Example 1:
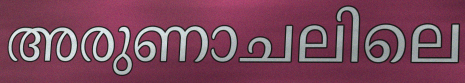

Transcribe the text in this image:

അരുണാചലിലെ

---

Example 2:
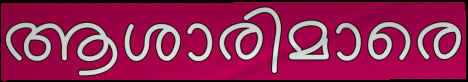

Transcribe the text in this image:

ആശാരിമാരെ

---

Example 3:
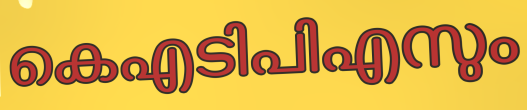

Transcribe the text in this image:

കെഎടിപിഎസും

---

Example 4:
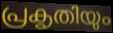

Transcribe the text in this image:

പ്രകൃതിയും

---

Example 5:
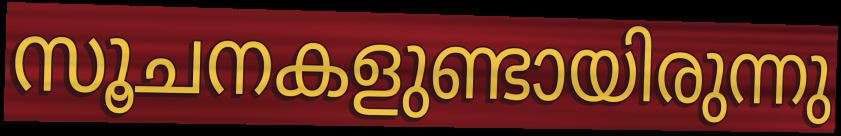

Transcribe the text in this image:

സൂചനകളുണ്ടായിരുന്നു